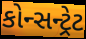
કોન્સન્ટ્રેટ